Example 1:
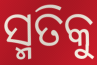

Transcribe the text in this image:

ସ୍ମତିକୁ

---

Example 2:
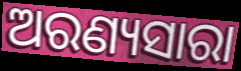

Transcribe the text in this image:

ଅରଣ୍ୟସାରା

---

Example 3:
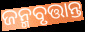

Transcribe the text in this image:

ଜନ୍ମବୃତ୍ତାନ୍ତ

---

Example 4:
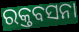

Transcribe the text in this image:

ରକ୍ତବସନା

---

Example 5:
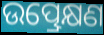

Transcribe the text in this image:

ଉତ୍ପ୍ରେକ୍ଷଣ